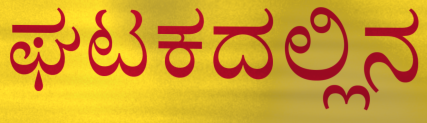
ಘಟಕದಲ್ಲಿನ